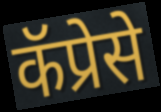
कॅप्रेसे